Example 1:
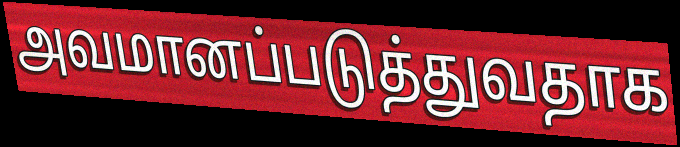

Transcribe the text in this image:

அவமானப்படுத்துவதாக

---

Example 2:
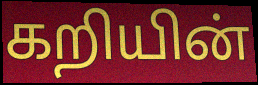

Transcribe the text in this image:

கறியின்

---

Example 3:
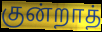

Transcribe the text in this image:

குன்றாத்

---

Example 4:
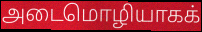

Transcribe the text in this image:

அடைமொழியாகக்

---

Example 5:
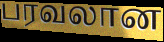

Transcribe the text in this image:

பரவலான